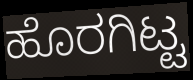
ಹೊರಗಿಟ್ಟ